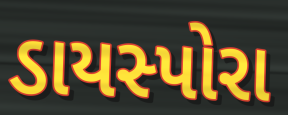
ડાયસ્પોરા